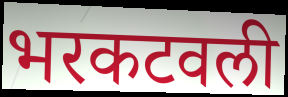
भरकटवली